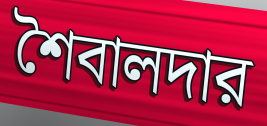
শৈবালদার